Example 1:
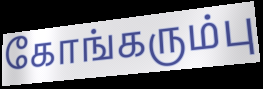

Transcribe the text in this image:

கோங்கரும்பு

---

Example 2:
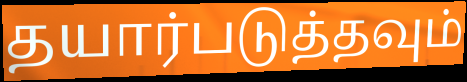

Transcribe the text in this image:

தயார்படுத்தவும்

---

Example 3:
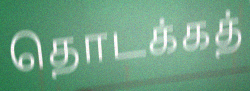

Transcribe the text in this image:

தொடக்கத்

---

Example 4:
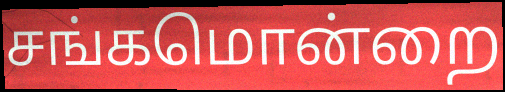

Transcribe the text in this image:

சங்கமொன்றை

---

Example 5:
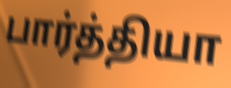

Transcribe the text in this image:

பார்த்தியா